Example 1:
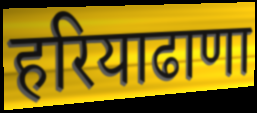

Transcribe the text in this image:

हरियाढाणा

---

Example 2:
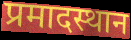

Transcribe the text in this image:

प्रमादस्थान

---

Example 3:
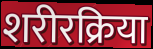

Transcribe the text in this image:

शरीरक्रिया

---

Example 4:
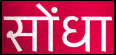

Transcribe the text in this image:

सोंधा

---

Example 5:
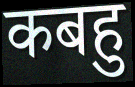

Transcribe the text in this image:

कबहु